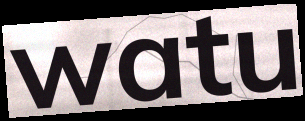
watu